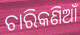
ଚାରିକଣିଆଁ